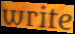
write